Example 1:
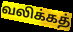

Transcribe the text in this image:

வலிக்கத்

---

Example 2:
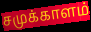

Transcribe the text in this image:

சமுக்காளம்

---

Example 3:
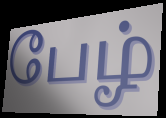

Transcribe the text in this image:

பேழ்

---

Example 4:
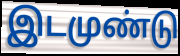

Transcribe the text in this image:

இடமுண்டு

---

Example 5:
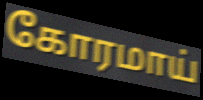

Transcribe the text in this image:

கோரமாய்